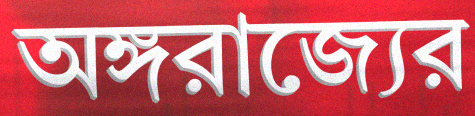
অঙ্গরাজ্যের